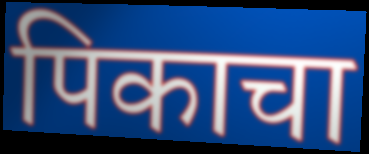
पिकाचा